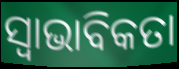
ସ୍ଵାଭାବିକତା